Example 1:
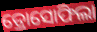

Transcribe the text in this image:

ଡ୍ରୋସୋଫିଲା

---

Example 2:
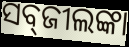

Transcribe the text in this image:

ସବ୍‌ଜୀଲଙ୍କା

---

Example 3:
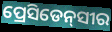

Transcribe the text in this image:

ପ୍ରେସିଡେନ୍‌ସୀର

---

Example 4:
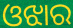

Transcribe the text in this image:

ଓଝାର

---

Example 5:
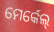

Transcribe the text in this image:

ମେର୍କେଲ୍